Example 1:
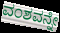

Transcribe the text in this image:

ವಂಶವನ್ನೇ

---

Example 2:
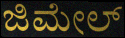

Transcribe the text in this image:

ಜಿಮೇಲ್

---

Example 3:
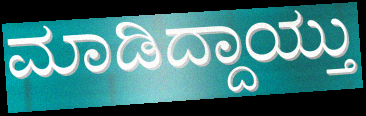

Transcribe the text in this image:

ಮಾಡಿದ್ದಾಯ್ತು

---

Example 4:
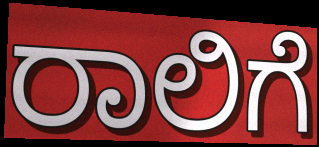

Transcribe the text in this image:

ರಾಲಿಗೆ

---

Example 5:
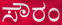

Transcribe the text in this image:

ಸೌರಂ